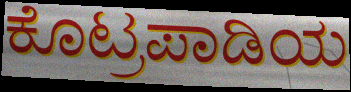
ಕೊಟ್ರಪಾಡಿಯ